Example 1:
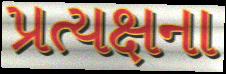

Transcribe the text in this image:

પ્રત્યક્ષના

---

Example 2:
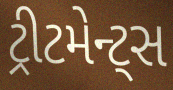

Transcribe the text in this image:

ટ્રીટમેન્ટ્સ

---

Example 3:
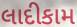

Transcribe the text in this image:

લાદીકામ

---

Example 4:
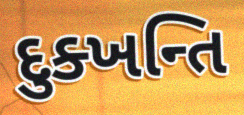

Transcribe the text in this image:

દુક્ખન્તિ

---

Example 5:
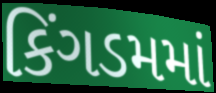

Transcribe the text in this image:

કિંગડમમાં